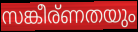
സങ്കീര്ണതയും